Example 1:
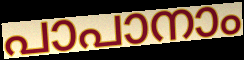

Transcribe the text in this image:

പാപാനാം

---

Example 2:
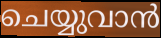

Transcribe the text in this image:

ചെയ്യുവാൻ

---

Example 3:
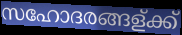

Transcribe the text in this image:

സഹോദരങ്ങള്ക്ക്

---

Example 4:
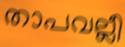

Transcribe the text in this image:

താപവല്ലീ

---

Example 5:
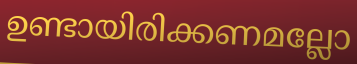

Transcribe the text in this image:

ഉണ്ടായിരിക്കണമല്ലോ